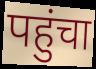
पहुंचा